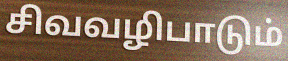
சிவவழிபாடும்